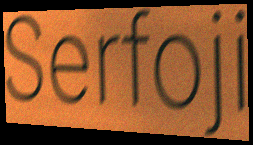
Serfoji